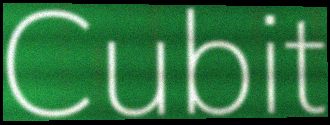
Cubit